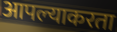
आपल्याकरता